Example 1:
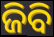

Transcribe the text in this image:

ଜିବି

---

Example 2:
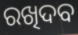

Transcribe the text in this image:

ରଖିଦବ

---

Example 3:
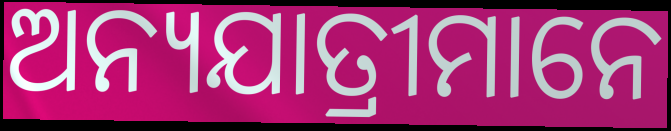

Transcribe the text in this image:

ଅନ୍ୟଯାତ୍ରୀମାନେ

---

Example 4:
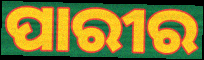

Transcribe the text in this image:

ପାରୀର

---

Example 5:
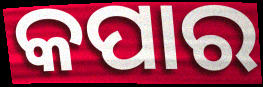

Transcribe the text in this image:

କପାର